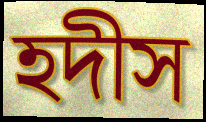
হদীস